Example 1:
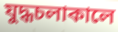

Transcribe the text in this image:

যুদ্ধচলাকালে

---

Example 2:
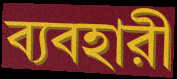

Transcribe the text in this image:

ব্যবহারী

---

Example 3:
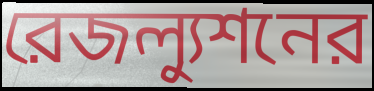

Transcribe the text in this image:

রেজল্যুশনের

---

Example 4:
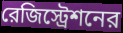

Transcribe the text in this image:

রেজিস্ট্রেশনের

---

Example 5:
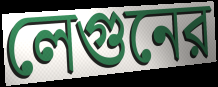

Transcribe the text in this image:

লেগুনের